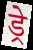
ड्रे